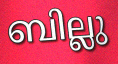
ബില്ലു